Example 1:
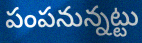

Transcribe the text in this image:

పంపనున్నట్టు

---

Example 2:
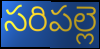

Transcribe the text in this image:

సరిపల్లె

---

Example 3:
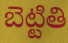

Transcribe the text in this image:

బెట్టితి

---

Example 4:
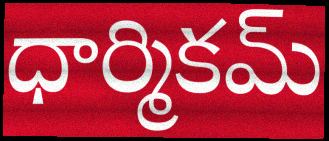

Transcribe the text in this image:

ధార్మికమ్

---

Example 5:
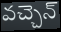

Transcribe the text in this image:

వచ్చెన్